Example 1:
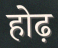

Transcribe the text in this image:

होढ़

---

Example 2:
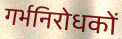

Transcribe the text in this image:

गर्भनिरोधकों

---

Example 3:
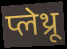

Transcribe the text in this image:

प्लेथ्रू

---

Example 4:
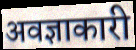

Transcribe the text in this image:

अवज्ञाकारी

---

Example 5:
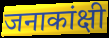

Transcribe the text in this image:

जनाकांक्षी